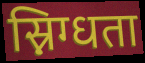
स्निग्धता